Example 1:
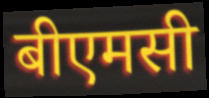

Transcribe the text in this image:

बीएमसी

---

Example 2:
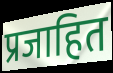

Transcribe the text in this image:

प्रजाहित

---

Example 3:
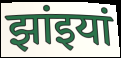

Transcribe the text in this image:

झांइयां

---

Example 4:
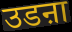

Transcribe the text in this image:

उडऩा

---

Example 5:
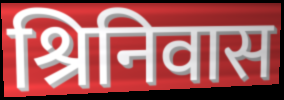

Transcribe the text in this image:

श्रिनिवास